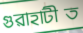
গুৱাহাটীত